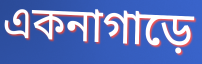
একনাগাড়ে